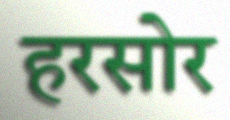
हरसोर